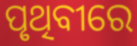
ପୃଥିବୀରେ